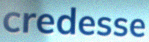
credesse